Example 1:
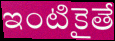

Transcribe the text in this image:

ఇంటికైతే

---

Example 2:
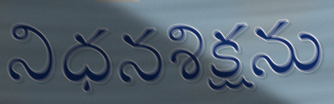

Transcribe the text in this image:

నిధనశిక్షను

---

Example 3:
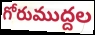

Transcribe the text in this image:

గోరుముద్దల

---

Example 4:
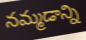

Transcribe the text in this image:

నమ్మడాన్ని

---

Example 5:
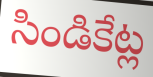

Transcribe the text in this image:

సిండికేట్ల